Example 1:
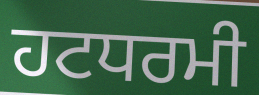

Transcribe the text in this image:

ਹਟਧਰਮੀ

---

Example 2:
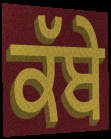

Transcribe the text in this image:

ਕੱਬੇ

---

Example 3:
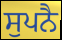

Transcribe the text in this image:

ਸੁਪਨੈ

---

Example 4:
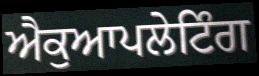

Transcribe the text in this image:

ਐਕੁਆਪਲੇਟਿੰਗ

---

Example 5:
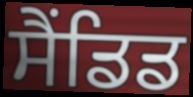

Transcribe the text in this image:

ਸੈਂਡਿਡ